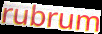
rubrum